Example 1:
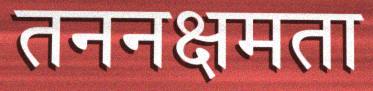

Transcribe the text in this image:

तननक्षमता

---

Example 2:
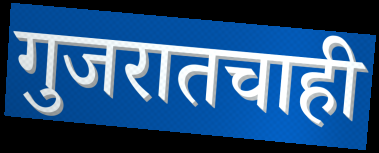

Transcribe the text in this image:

गुजरातचाही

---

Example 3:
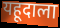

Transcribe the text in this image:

यहूदाला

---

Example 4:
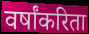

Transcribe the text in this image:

वर्षांकरिता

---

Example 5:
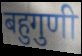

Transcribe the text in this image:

बहुगुणी